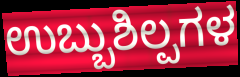
ಉಬ್ಬುಶಿಲ್ಪಗಳ